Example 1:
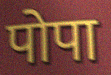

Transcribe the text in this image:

पोपा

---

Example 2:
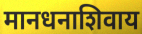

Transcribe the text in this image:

मानधनाशिवाय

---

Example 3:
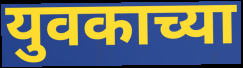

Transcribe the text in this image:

युवकाच्या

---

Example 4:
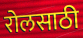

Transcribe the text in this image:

रोलसाठी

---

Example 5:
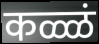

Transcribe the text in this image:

कळ्ळं